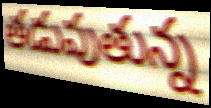
తడుపుతున్న